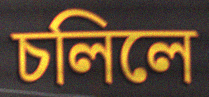
চলিলে